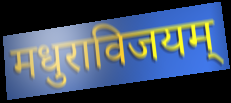
मधुराविजयम्